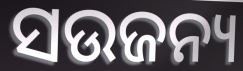
ସଉଜନ୍ୟ